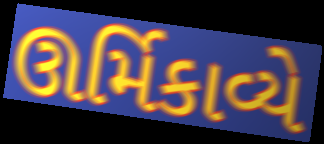
ઊર્મિકાવ્યે